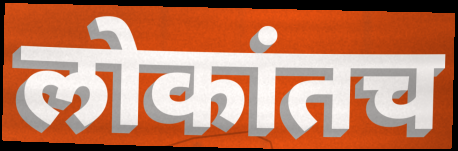
लोकांतच